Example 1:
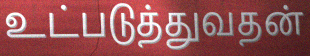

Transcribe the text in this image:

உட்படுத்துவதன்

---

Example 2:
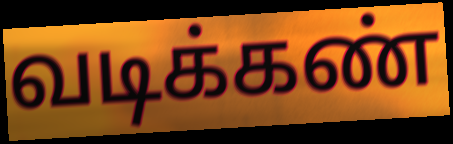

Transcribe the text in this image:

வடிக்கண்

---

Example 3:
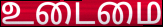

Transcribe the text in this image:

உடைமை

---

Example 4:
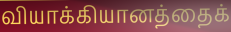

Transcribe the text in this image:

வியாக்கியானத்தைக்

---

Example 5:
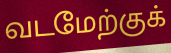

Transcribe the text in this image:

வடமேற்குக்